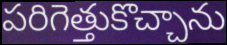
పరిగెత్తుకొచ్చాను